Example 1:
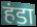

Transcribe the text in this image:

हंडा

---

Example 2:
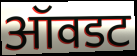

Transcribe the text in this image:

ऑवडट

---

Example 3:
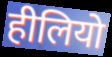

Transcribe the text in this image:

हीलियो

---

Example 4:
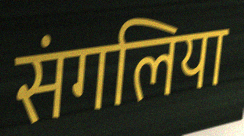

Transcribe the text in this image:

संगलिया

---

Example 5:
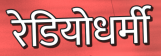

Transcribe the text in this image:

रेडियोधर्मी